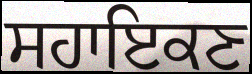
ਸਹਾਇਕਣ